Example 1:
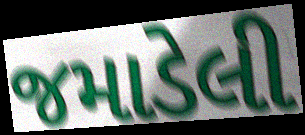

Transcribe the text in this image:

જમાડેલી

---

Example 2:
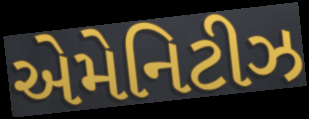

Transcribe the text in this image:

એમેનિટીઝ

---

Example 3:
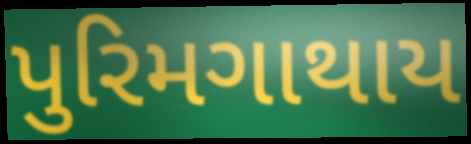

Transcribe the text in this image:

પુરિમગાથાય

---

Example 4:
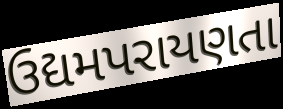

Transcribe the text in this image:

ઉદ્યમપરાયણતા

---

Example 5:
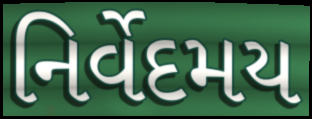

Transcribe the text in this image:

નિર્વેદમય